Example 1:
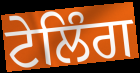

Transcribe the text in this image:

ਟੇਲਿੰਗ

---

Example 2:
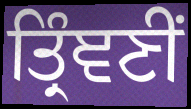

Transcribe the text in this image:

ਤ੍ਰਿੰਞਣੀਂ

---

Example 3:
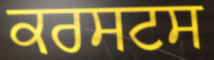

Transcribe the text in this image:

ਕਰਸਟਸ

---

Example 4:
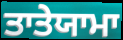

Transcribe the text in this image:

ਤਾਤੇਯਾਮਾ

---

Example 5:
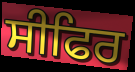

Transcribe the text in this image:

ਸੀਫਿਰ